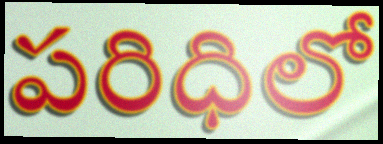
పరిధిలో